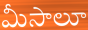
మీసాలూ